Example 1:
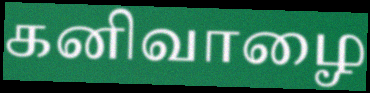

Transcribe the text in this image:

கனிவாழை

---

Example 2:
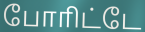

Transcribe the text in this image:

போரிட்டே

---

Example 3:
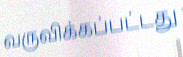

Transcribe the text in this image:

வருவிக்கப்பட்டது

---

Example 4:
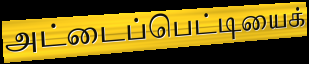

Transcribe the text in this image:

அட்டைப்பெட்டியைக்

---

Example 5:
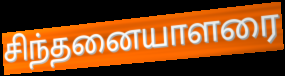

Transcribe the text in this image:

சிந்தனையாளரை